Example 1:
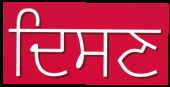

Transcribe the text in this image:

ਦਿਸਣ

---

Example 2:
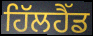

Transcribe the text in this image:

ਹਿੱਲਹੈੱਡ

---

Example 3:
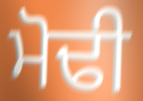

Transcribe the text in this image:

ਮੋਢੀ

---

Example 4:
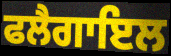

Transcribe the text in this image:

ਫਲੈਗਾਇਲ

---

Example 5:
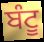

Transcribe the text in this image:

ਬੰਟੂ